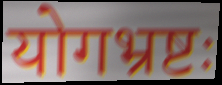
योगभ्रष्टः